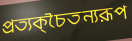
প্রত্যক্‌চৈতন্যরূপ